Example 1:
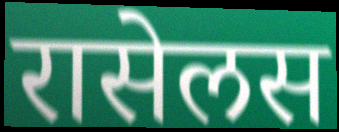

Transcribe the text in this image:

रासेलस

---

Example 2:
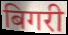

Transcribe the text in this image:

बिगरी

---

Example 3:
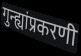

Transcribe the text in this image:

गुन्ह्यांप्रकरणी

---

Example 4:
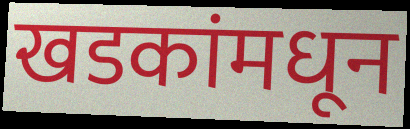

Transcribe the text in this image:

खडकांमधून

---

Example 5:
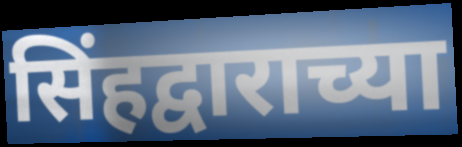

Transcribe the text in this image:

सिंहद्वाराच्या